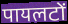
पायलटों